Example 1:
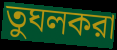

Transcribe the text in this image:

তুঘলকরা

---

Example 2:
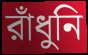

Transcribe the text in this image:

রাঁধুনি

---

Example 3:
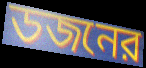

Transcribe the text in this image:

ডজনের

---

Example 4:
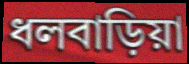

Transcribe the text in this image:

ধলবাড়িয়া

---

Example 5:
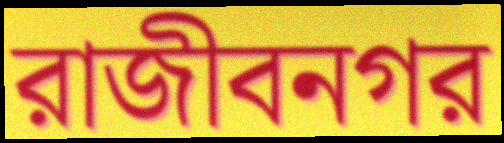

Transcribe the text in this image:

রাজীবনগর